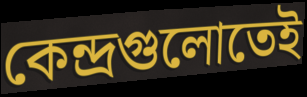
কেন্দ্রগুলোতেই